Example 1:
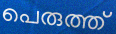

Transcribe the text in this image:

പെരുത്ത്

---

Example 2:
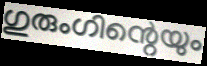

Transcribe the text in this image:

ഗുരുംഗിന്റെയും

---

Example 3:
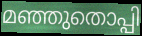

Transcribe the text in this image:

മഞ്ഞുതൊപ്പി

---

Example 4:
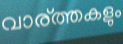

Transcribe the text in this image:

വാര്ത്തകളും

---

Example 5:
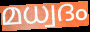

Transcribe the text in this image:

മധ്വദം